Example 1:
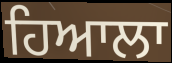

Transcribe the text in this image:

ਹਿਆਲਾ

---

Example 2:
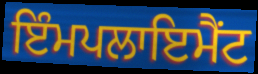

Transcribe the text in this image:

ਇੰਮਪਲਾਇਮੈਂਟ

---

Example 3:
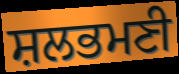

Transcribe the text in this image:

ਸ਼ਲਭਮਣੀ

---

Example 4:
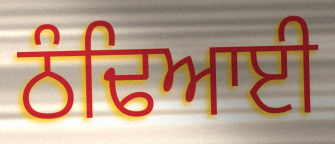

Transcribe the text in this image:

ਠੰਢਿਆਈ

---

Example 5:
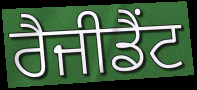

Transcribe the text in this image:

ਰੈਜੀਡੈਂਟ